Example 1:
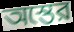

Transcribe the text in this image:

অস্তের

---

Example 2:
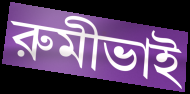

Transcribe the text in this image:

রুমীভাই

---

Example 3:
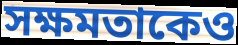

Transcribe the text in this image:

সক্ষমতাকেও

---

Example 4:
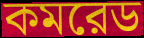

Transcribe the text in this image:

কমরেড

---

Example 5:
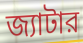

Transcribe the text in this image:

জ্যাটার